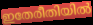
ഇതേരീതിയിൽ